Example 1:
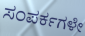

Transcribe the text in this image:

ಸಂಪರ್ಕಗಳೇ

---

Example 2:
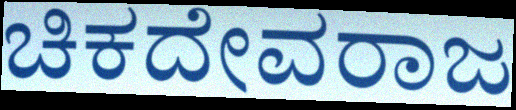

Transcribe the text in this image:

ಚಿಕದೇವರಾಜ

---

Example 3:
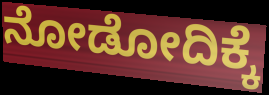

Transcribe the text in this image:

ನೋಡೋದಿಕ್ಕೆ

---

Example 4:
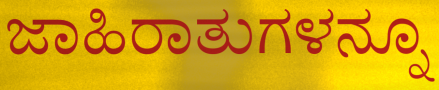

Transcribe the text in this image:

ಜಾಹಿರಾತುಗಳನ್ನೂ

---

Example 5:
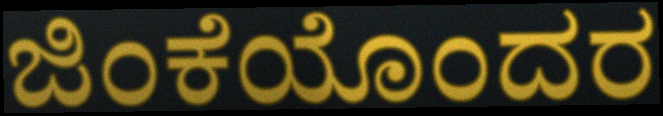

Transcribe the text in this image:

ಜಿಂಕೆಯೊಂದರ